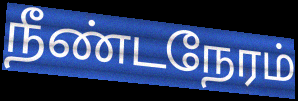
நீண்டநேரம்